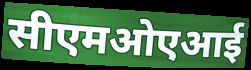
सीएमओएआई